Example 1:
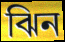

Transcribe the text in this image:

ঝিন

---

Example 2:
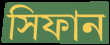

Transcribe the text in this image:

সিফান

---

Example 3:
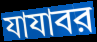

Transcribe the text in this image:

যাযাবর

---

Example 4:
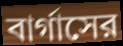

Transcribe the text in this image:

বার্গাসের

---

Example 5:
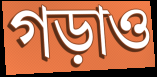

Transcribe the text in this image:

গড়াও